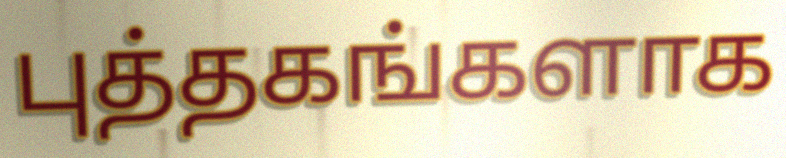
புத்தகங்களாக